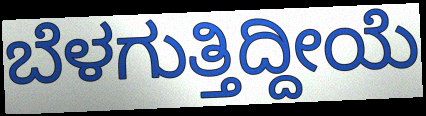
ಬೆಳಗುತ್ತಿದ್ದೀಯೆ